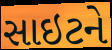
સાઇટને